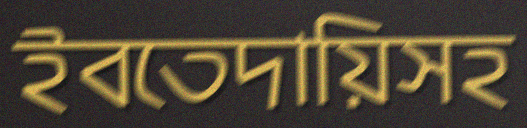
ইবতেদায়িসহ